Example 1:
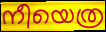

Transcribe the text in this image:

നീയെത്ര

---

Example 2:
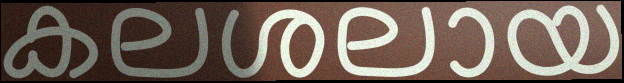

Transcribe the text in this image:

കലശലായ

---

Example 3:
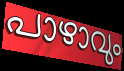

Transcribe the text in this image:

പാഴാവും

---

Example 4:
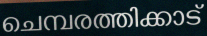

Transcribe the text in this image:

ചെമ്പരത്തിക്കാട്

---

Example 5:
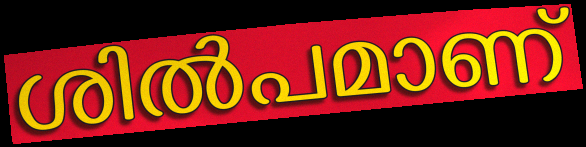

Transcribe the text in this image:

ശിൽപമാണ്